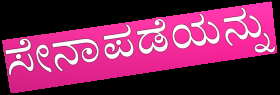
ಸೇನಾಪಡೆಯನ್ನು